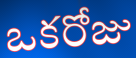
ఒకరోజు